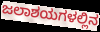
ಜಲಾಶಯಗಳಲ್ಲಿನ